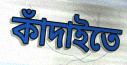
কাঁদাইতে